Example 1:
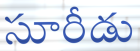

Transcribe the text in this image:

సూరీడు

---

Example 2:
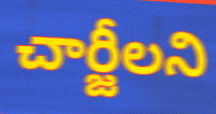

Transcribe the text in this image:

చార్జీలని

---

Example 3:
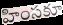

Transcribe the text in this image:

హింసకూ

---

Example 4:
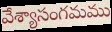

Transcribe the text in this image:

వేశ్యాసంగమము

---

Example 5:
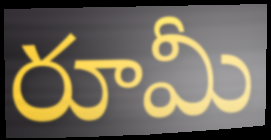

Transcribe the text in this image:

రూమీ